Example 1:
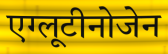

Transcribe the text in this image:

एग्लूटीनोजेन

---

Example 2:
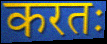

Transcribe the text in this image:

करतः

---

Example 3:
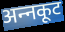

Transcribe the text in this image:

अन्नकूट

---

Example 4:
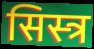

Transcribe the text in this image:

सिस्त्र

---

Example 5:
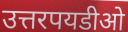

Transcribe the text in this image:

उत्तरपयडीओ